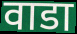
वाडा